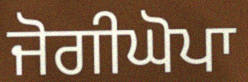
ਜੋਗੀਘੋਪਾ